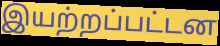
இயற்றப்பட்டன